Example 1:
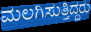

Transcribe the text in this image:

ಮಲಗಿಸುತ್ತಿದ್ದರು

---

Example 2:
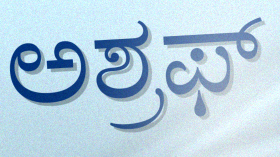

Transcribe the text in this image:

ಅಶ್ರಫ್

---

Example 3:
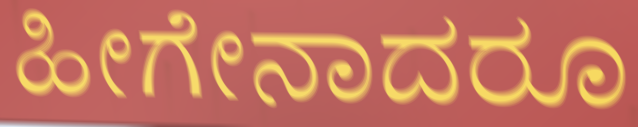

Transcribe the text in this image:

ಹೀಗೇನಾದರೂ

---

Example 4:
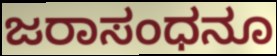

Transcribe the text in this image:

ಜರಾಸಂಧನೂ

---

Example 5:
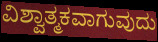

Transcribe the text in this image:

ವಿಶ್ವಾತ್ಮಕವಾಗುವುದು